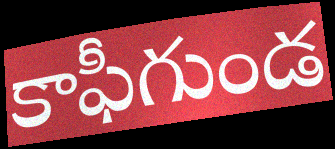
కాఫీగుండ